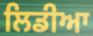
ਲਿਡੀਆ